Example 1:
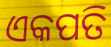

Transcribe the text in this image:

ଏକପତି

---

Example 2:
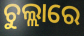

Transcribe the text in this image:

ଚୁଲ୍ଲାରେ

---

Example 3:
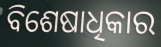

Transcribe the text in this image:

ବିଶେଷାଧିକାର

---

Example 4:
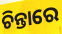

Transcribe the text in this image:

ଚିନ୍ତାରେ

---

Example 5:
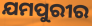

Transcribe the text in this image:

ଯମପୁରୀର